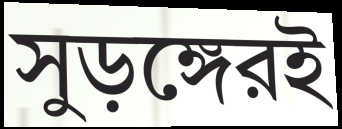
সুড়ঙ্গেরই